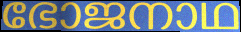
ഭോജനാഥ